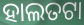
ହାଲତଟା